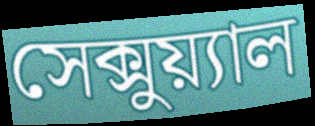
সেক্সুয়্যাল